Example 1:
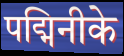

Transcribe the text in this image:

पद्मिनीके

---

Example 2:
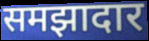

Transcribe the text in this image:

समझादार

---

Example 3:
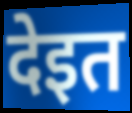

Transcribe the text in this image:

देइत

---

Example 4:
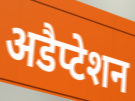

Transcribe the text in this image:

अडैप्टेशन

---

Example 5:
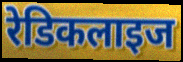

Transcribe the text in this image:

रेडिकलाइज